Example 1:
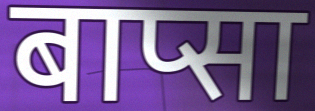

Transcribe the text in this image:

बाप्सा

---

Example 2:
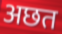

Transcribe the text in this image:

अछत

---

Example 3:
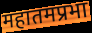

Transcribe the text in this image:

महातमप्रभा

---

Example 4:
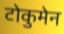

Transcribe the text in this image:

टोकुमेन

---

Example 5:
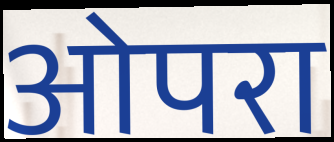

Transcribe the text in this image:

ओपरा